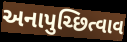
અનાપુચ્છિત્વાવ